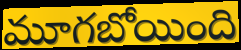
మూగబోయింది